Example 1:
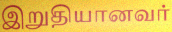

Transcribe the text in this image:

இறுதியானவர்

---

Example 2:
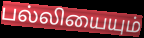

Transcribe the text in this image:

பல்லியையும்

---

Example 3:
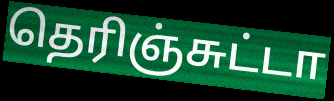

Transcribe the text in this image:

தெரிஞ்சுட்டா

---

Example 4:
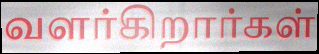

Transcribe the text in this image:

வளர்கிறார்கள்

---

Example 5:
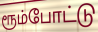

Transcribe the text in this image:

ரூம்போட்டு